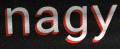
nagy